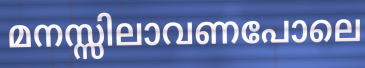
മനസ്സിലാവണപോലെ